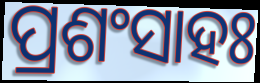
ପ୍ରଶଂସାହଃ